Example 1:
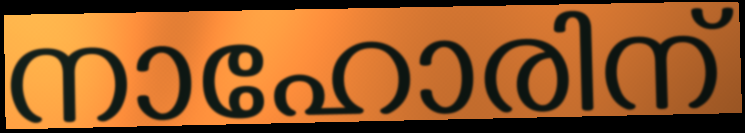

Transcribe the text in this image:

നാഹോരിന്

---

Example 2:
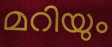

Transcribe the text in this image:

മറിയും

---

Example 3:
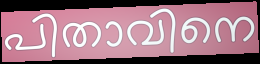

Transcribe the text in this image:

പിതാവിനെ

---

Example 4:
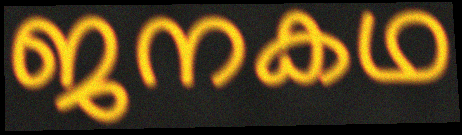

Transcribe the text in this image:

ജനകഥ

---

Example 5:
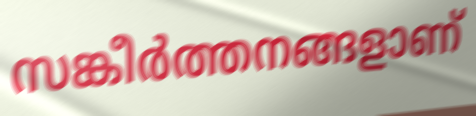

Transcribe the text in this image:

സങ്കീർത്തനങ്ങളാണ്